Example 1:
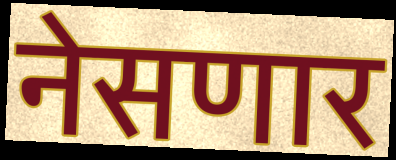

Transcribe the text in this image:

नेसणार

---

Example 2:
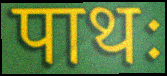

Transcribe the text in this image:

पाथः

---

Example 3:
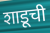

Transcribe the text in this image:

शाडूची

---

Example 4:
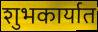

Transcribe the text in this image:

शुभकार्यात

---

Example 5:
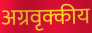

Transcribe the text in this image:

अग्रवृक्कीय